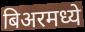
बिअरमध्ये